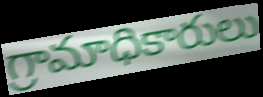
గ్రామాధికారులు